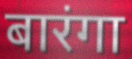
बारंगा